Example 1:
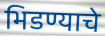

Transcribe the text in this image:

भिडण्याचे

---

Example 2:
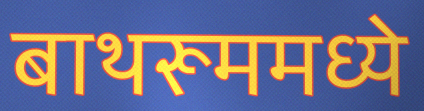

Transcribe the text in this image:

बाथरूममध्ये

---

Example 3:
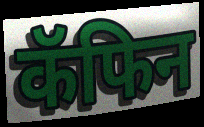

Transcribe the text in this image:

कॅफिन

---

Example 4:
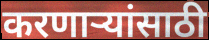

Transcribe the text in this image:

करणाऱ्यांसाठी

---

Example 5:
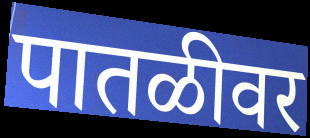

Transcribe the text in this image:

पातळीवर